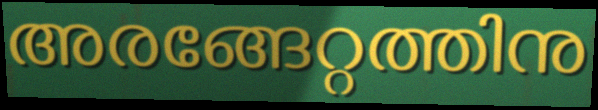
അരങ്ങേറ്റത്തിനു